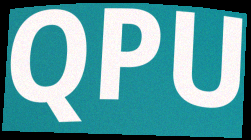
QPU